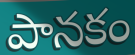
పానకం